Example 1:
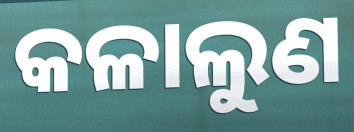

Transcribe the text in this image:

କଳାଲୁଣ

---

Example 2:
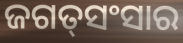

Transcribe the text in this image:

ଜଗତ୍‌ସଂସାର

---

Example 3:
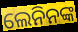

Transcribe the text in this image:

ଲେନିନଙ୍କ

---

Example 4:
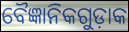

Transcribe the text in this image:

ବୈଜ୍ଞାନିକଗୁଡ଼ାକ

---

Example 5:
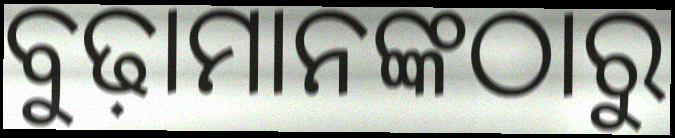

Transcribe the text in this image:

ବୁଢ଼ାମାନଙ୍କଠାରୁ